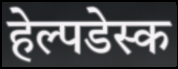
हेल्पडेस्क